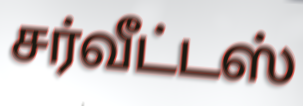
சர்வீட்டஸ்